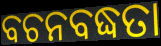
ବଚନବଦ୍ଧତା